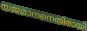
യജമാനനെതിരായി